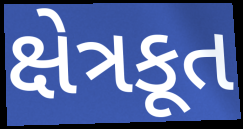
ક્ષેત્રકૂત